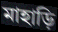
মাহাড়ি